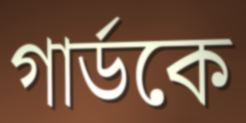
গার্ডকে